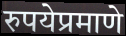
रुपयेप्रमाणे